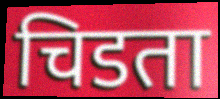
चिडता